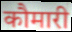
कौमारी